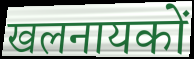
खलनायकों